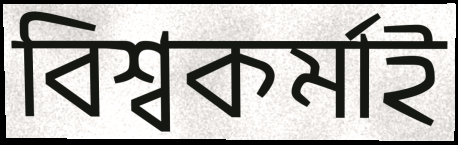
বিশ্বকৰ্মাই